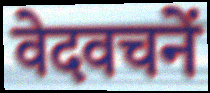
वेदवचनें